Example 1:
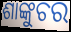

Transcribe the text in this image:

ଶାଙ୍କୁଚର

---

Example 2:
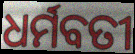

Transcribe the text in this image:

ଧର୍ମବତୀ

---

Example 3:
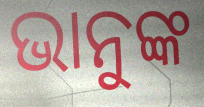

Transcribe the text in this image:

ଭାନୁଙ୍କ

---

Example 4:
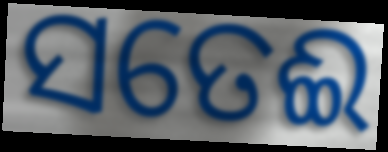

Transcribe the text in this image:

ସତେଈ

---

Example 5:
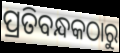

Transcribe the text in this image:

ପ୍ରତିବନ୍ଧକଠାରୁ